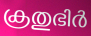
ക്രതുഭിർ